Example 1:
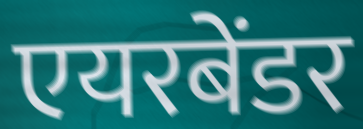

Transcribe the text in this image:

एयरबेंडर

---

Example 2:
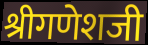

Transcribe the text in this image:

श्रीगणेशजी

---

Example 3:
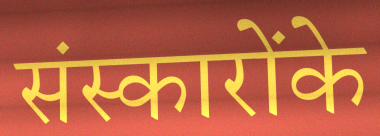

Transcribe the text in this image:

संस्कारोंके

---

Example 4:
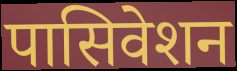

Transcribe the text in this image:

पासिवेशन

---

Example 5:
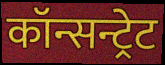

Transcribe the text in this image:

कॉन्सन्ट्रेट